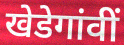
खेडेगांवीं